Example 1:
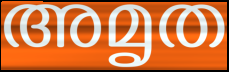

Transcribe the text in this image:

അമൃത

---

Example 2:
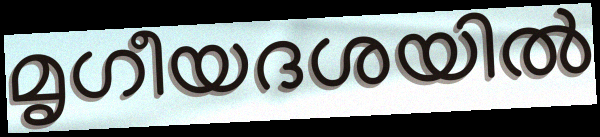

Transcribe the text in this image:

മൃഗീയദശയിൽ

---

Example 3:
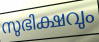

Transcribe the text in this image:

സുഭിക്ഷവും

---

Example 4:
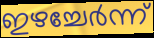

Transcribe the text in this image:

ഇഴച്ചേർന്ന്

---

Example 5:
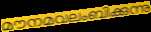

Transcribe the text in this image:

മൗനമവലംബിക്കുന്നു